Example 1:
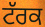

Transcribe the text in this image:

ਟੱਰਕ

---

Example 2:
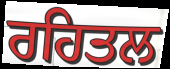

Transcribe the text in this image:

ਰਹਿਤਲ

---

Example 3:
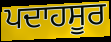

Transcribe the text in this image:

ਪਦਾਹਸੂਰ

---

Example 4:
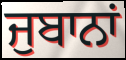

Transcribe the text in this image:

ਜੁਬਾਨਾਂ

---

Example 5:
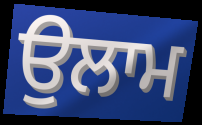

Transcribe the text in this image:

ਉਲਾਮ